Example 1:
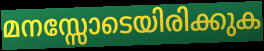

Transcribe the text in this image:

മനസ്സോടെയിരിക്കുക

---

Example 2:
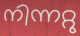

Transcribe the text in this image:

നിന്നറ്റു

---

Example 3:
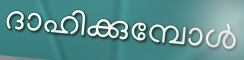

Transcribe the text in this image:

ദാഹിക്കുമ്പോൾ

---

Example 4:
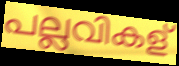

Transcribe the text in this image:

പല്ലവികള്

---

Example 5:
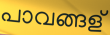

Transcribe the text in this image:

പാവങ്ങള്